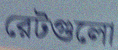
রেটগুলো